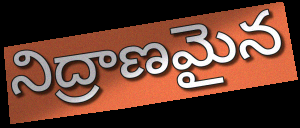
నిద్రాణమైన